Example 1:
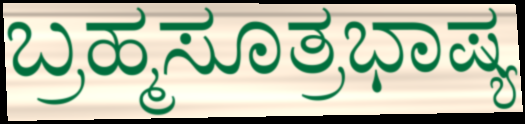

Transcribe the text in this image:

ಬ್ರಹ್ಮಸೂತ್ರಭಾಷ್ಯ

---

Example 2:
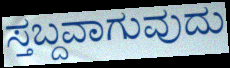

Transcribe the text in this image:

ಸ್ತಬ್ದವಾಗುವುದು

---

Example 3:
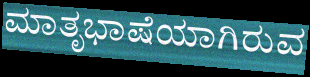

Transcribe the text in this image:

ಮಾತೃಭಾಷೆಯಾಗಿರುವ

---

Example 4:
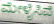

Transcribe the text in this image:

ಮೇಳೈಸಿವೆ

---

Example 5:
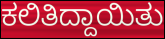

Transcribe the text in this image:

ಕಲಿತಿದ್ದಾಯಿತು